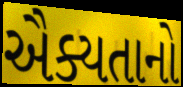
ઐક્યતાનો